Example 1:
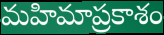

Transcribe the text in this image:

మహిమాప్రకాశం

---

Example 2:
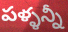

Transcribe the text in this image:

పళ్ళన్నీ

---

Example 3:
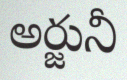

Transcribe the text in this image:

అర్జునీ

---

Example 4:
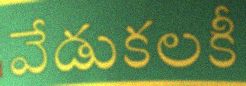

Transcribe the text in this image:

వేడుకలకీ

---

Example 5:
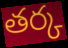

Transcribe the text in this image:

తర్క